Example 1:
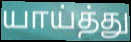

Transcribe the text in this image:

யாய்த்து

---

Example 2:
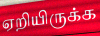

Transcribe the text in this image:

ஏறியிருக்க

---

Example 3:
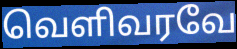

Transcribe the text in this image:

வெளிவரவே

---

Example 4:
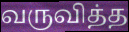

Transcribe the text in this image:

வருவித்த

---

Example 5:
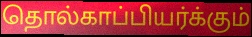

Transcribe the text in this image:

தொல்காப்பியர்க்கும்